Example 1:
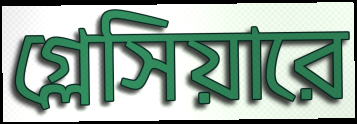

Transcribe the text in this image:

গ্লেসিয়ারে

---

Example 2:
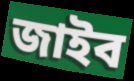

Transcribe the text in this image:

জাইব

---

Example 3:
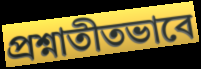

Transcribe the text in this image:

প্রশ্নাতীতভাবে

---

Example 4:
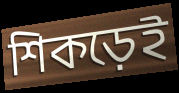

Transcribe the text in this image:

শিকড়েই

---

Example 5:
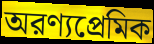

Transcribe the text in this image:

অরণ্যপ্রেমিক